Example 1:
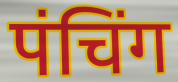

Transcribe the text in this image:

पंचिंग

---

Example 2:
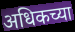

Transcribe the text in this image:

अधिकच्या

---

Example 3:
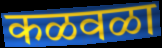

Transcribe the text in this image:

कळवळा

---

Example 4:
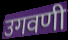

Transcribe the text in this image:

उगवणी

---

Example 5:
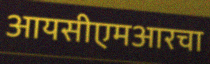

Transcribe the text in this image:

आयसीएमआरचा